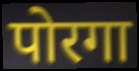
पोरगा